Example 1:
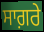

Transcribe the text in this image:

ਸਾਗ਼ਰੇ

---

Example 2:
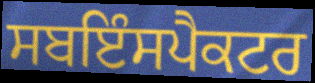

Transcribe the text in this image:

ਸਬਇੰਸਪੈਕਟਰ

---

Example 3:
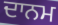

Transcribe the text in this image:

ਦਾਨਮ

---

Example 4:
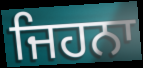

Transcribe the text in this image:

ਜਿਹਨਾ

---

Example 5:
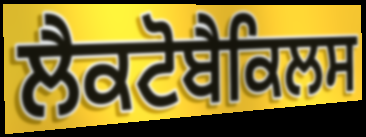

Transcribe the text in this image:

ਲੈਕਟੋਬੈਕਿਲਸ